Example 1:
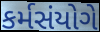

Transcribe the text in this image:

કર્મસંયોગે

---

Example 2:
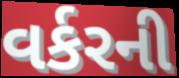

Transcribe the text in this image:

વર્કરની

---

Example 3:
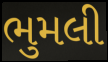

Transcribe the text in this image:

ભુમલી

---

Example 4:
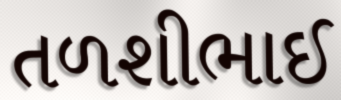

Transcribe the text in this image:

તળશીભાઈ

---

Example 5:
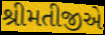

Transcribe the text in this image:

શ્રીમતીજીએ